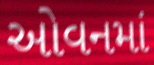
ઓવનમાં